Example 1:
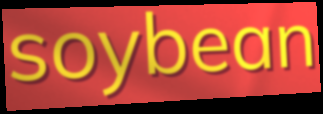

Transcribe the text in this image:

soybean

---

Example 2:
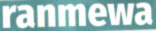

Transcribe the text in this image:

ranmewa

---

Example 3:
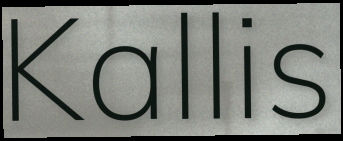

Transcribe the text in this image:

Kallis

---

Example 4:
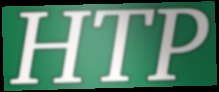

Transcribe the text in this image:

HTP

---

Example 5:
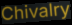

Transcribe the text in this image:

Chivalry